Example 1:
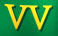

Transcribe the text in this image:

vv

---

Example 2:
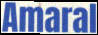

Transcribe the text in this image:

Amaral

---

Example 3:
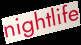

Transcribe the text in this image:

nightlife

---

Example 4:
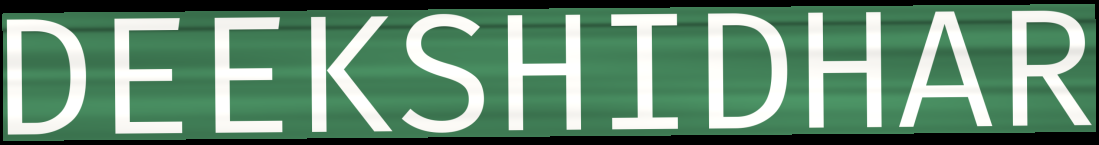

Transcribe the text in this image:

DEEKSHIDHAR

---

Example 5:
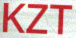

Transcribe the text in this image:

KZT